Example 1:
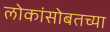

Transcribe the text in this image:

लोकांसोबतच्या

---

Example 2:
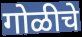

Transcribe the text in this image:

गोळीचे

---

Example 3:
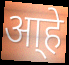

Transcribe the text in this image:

आ्हे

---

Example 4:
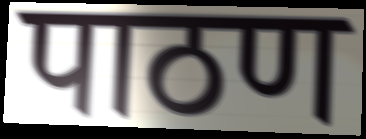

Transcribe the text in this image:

पाठण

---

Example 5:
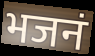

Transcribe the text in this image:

भजनं